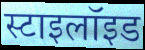
स्टाइलॉइड